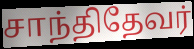
சாந்திதேவர்